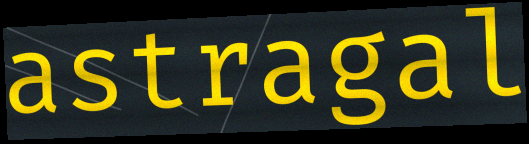
astragal